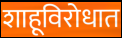
शाहूविरोधात